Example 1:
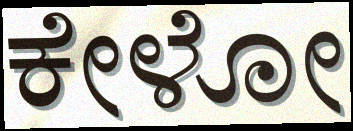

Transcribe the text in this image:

ಕೇಳೋ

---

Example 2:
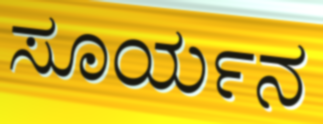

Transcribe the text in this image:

ಸೂರ್ಯನ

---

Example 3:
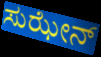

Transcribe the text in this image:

ಸುಝೇನ್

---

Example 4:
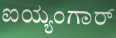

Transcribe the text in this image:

ಐಯ್ಯಂಗಾರ್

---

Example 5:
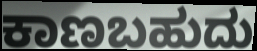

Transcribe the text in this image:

ಕಾಣಬಹುದು